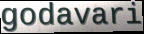
godavari